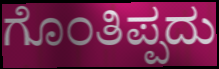
ಗೊಂತಿಪ್ಪದು